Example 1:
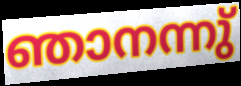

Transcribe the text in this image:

ഞാനന്നു്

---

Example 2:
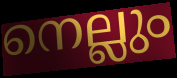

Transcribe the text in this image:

നെല്ലും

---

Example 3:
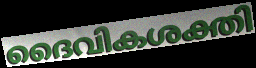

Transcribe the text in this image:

ദൈവികശക്തി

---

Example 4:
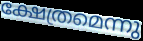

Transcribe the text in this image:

ക്ഷേത്രമെന്നു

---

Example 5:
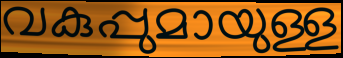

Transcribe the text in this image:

വകുപ്പുമായുള്ള